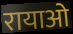
रायाओ